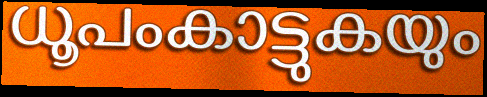
ധൂപംകാട്ടുകയും